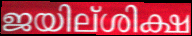
ജയില്ശിക്ഷ